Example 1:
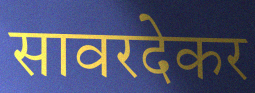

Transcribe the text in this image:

सावरदेकर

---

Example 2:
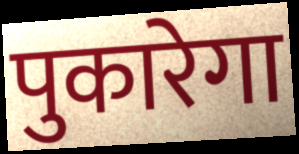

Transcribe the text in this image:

पुकारेगा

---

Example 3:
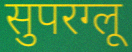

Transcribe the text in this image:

सुपरग्लू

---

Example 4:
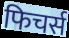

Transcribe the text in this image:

फिचर्स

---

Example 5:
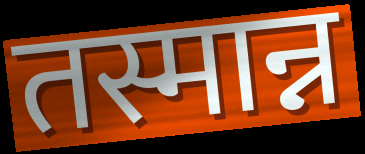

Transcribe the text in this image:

तस्मान्न